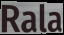
Rala